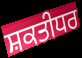
ਸ਼ਕਤੀਧਰ